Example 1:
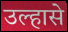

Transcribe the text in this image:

उल्हासे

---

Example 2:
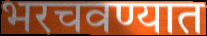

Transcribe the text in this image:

भरचवण्यात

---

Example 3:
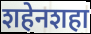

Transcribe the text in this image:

शहेनशहा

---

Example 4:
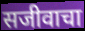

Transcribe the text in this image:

सजीवाचा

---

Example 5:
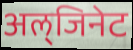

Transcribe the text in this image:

अल्जिनेट